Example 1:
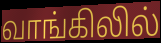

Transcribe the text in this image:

வாங்கிலில்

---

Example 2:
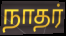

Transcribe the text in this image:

நாதர்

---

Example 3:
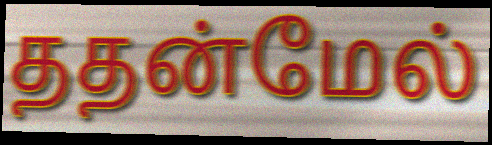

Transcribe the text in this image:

ததன்மேல்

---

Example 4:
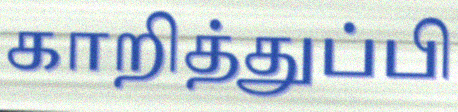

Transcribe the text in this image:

காறித்துப்பி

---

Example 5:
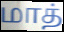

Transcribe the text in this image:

மாத்